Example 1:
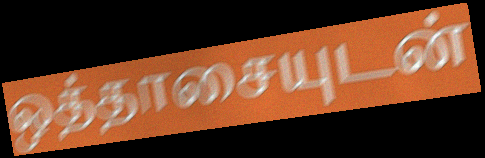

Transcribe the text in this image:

ஒத்தாசையுடன்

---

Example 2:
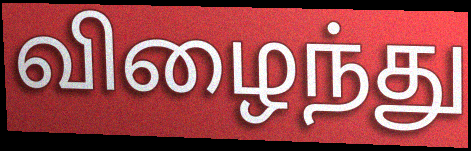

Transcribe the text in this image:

விழைந்து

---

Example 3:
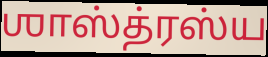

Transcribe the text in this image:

ஶாஸ்த்ரஸ்ய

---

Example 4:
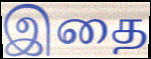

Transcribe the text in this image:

இதை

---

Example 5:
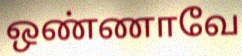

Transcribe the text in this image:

ஒண்ணாவே